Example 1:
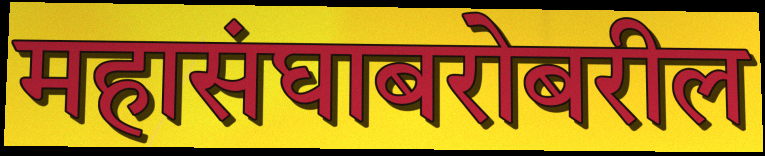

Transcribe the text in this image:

महासंघाबरोबरील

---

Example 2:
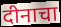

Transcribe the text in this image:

दीनाचा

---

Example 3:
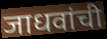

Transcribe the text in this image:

जाधवांची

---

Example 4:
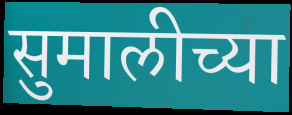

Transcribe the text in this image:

सुमालीच्या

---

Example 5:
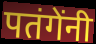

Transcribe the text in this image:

पतंगेंनी